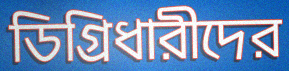
ডিগ্রিধারীদের